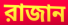
রাজান